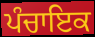
ਪੰਚਾਇਕ